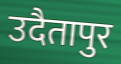
उदैतापुर